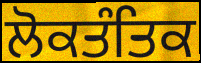
ਲੋਕਤੰਤਿਕ